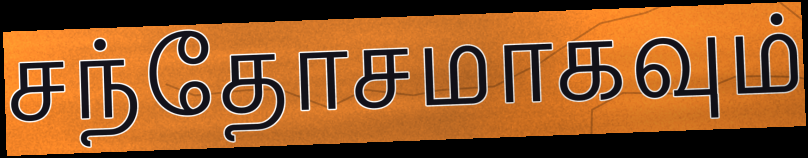
சந்தோசமாகவும்